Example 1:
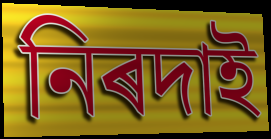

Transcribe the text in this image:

নিৰদাই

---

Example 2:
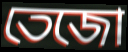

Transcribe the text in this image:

তেজো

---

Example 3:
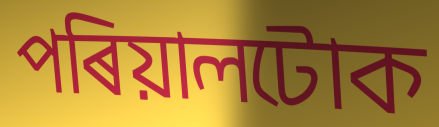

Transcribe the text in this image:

পৰিয়ালটোক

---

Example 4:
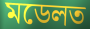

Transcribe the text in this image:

মডেলত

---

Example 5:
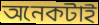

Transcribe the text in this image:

অনেকটাই